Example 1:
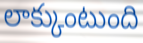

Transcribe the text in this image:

లాక్కుంటుంది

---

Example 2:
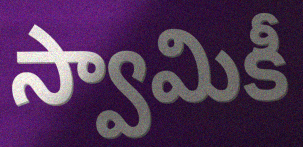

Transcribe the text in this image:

స్వామికీ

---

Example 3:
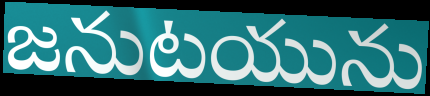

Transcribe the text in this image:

జనుటయును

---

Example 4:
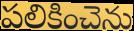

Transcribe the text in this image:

పలికించెను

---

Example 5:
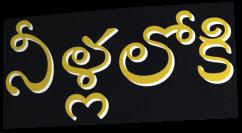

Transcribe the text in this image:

నీళ్లలోకి